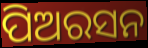
ପିଅରସନ